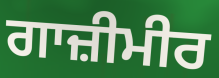
ਗਾਜ਼ੀਮੀਰ